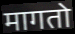
मागतो